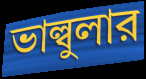
ভাল্বুলার